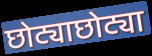
छोट्याछोट्या